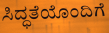
ಸಿದ್ಧತೆಯೊಂದಿಗೆ